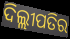
ଦିଲ୍ଲୀପତିର